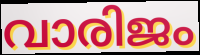
വാരിജം